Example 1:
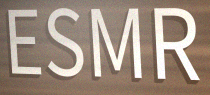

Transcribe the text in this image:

ESMR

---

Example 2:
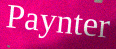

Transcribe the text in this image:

Paynter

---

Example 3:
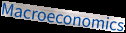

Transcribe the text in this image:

Macroeconomics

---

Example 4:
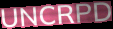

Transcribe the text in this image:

UNCRPD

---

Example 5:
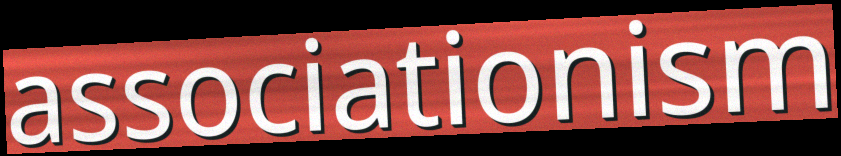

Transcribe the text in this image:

associationism